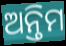
ଅନ୍ତିମ